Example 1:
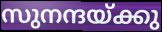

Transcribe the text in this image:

സുനന്ദയ്ക്കു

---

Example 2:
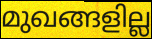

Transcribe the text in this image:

മുഖങ്ങളില്ല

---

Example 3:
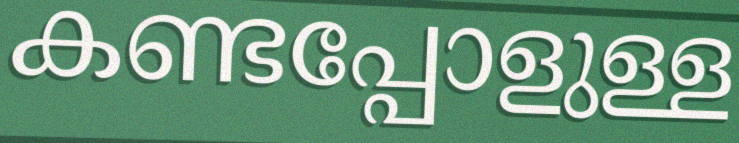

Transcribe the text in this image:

കണ്ടപ്പോളുള്ള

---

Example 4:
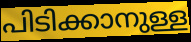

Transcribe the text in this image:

പിടിക്കാനുള്ള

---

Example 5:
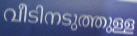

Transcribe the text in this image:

വീടിനടുത്തുള്ള